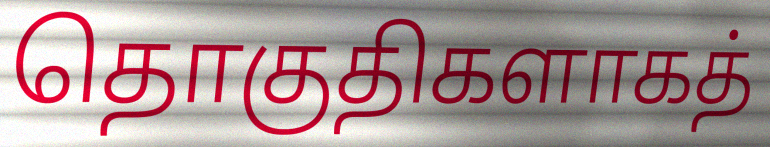
தொகுதிகளாகத்